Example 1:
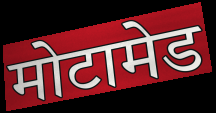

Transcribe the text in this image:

मोटामेड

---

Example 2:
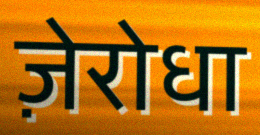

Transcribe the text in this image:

ज़ेरोधा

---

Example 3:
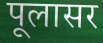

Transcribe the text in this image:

पूलासर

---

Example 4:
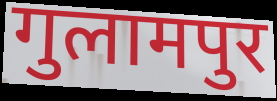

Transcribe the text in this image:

गुलामपुर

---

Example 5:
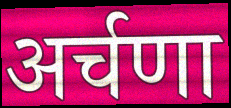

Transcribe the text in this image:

अर्चणा